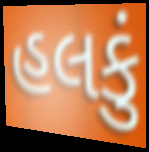
હલકું